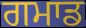
ਗਮਾਡ